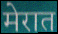
मेरात